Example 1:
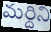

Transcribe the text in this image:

మర్దిని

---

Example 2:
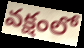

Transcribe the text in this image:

వక్షంలో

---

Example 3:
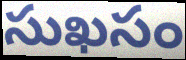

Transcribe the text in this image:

సుఖసం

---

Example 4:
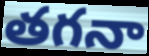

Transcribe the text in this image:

తగనా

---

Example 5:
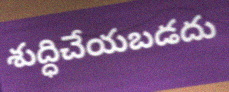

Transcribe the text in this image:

శుద్ధిచేయబడదు